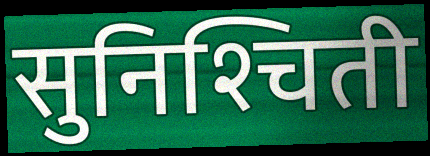
सुनिश्चिती